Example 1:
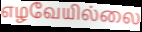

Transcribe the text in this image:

எழவேயில்லை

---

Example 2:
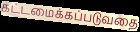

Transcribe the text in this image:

கட்டமைக்கப்படுவதை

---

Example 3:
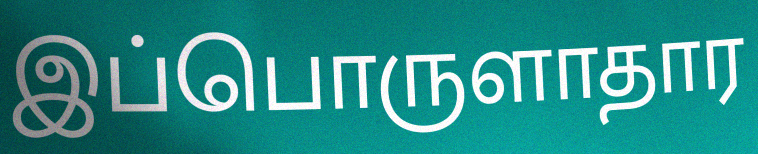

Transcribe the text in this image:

இப்பொருளாதார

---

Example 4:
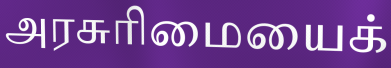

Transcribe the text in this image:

அரசுரிமையைக்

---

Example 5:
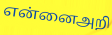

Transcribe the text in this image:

என்னைஅறி